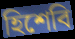
হিশেবি